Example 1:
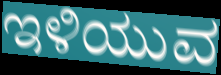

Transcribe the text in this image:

ಇಳಿಯುವ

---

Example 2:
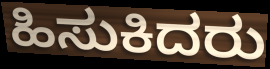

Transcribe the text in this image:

ಹಿಸುಕಿದರು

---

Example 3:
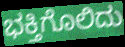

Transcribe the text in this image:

ಭಕ್ತಿಗೊಲಿದು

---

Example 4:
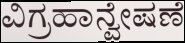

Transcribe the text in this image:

ವಿಗ್ರಹಾನ್ವೇಷಣೆ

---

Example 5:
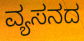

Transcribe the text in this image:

ವ್ಯಸನದ